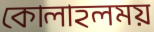
কোলাহলময়